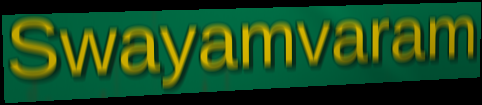
Swayamvaram